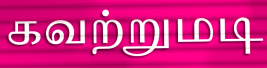
கவற்றுமடி